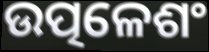
ଉତ୍ପଳେଶଂ